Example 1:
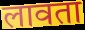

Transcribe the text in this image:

लावता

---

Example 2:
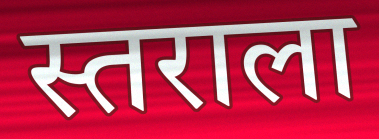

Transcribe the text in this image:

स्तराला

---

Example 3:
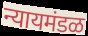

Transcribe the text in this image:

न्यायमंडळ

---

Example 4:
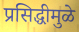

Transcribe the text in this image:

प्रसिद्धीमुळे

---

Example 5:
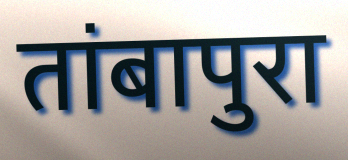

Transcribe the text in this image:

तांबापुरा